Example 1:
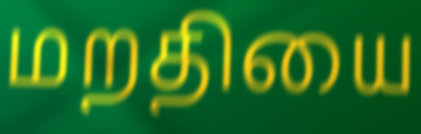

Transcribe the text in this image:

மறதியை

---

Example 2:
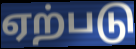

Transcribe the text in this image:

ஏற்படு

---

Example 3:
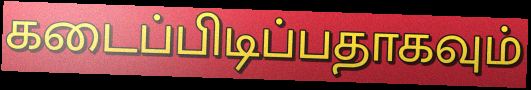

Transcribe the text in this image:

கடைப்பிடிப்பதாகவும்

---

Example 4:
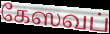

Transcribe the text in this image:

கேஸவப்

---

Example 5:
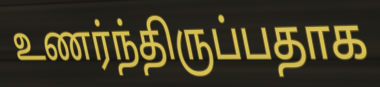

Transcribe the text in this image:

உணர்ந்திருப்பதாக